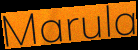
Marula